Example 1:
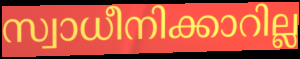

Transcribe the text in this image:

സ്വാധീനിക്കാറില്ല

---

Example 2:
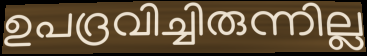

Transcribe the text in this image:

ഉപദ്രവിച്ചിരുന്നില്ല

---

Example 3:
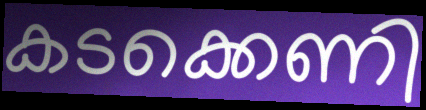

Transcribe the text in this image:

കടക്കെണി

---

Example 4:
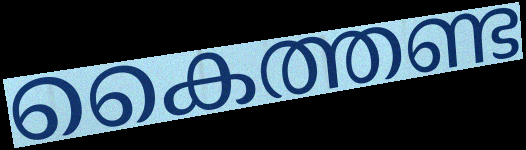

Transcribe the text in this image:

കൈത്തണ്ട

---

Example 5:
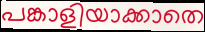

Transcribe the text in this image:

പങ്കാളിയാക്കാതെ